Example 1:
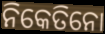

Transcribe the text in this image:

ନିକେତିନୋ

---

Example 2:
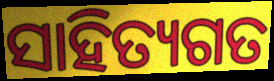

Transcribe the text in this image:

ସାହିତ୍ୟଗତ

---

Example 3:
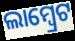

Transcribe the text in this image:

ଲାମ୍ୱ୍ରେଟ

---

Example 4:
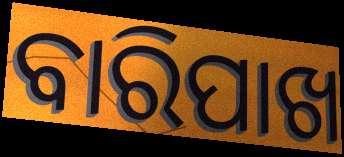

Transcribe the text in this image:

ବାରିପାଖ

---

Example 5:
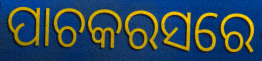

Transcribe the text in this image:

ପାଚକରସରେ